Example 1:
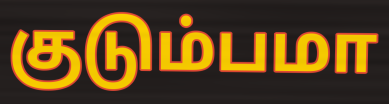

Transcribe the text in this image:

குடும்பமா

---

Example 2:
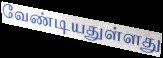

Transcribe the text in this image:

வேண்டியதுள்ளது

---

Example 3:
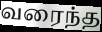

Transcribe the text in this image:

வரைந்த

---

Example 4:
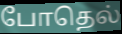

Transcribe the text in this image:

போதெல்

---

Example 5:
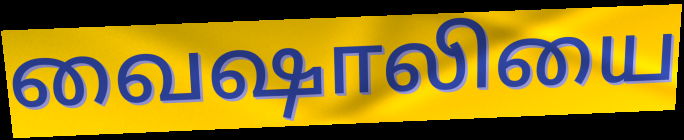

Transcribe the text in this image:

வைஷாலியை